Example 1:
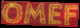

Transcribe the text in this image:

OMEF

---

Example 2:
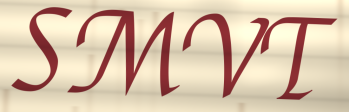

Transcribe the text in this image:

SMVT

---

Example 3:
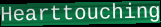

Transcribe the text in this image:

Hearttouching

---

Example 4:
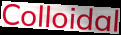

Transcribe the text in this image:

Colloidal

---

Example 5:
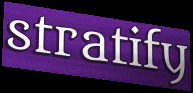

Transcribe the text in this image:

stratify